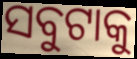
ସବୁଟାକୁ